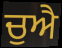
ਚੁਐ